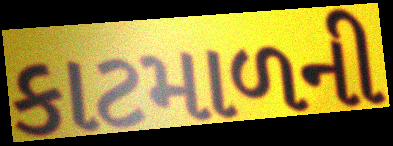
કાટમાળની